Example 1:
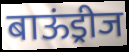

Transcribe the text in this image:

बाऊंड्रीज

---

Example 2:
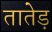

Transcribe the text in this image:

तातेड़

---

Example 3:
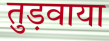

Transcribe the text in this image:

तुड़वाया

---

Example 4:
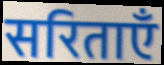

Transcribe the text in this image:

सरिताएँ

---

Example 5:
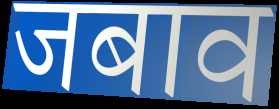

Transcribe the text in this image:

जबाव